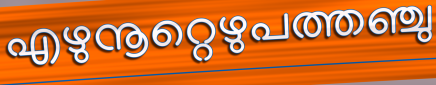
എഴുനൂറ്റെഴുപത്തഞ്ചു